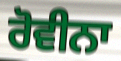
ਰੋਵੀਨਾ